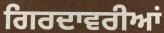
ਗਿਰਦਾਵਰੀਆਂ